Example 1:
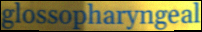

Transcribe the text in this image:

glossopharyngeal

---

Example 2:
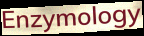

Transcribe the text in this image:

Enzymology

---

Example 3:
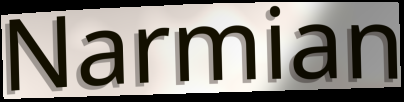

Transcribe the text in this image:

Narmian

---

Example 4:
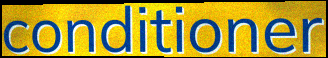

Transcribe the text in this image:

conditioner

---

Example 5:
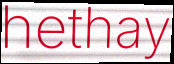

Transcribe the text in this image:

hethay